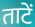
ताटें